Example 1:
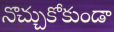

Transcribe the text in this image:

నొచ్చుకోకుండా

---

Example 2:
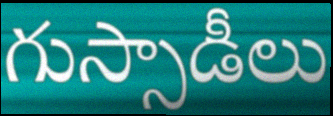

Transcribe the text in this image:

గుస్సాడీలు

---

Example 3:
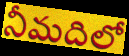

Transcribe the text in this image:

నీమదిలో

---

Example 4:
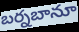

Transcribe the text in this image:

బర్నబానూ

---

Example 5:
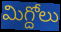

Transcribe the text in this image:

మిగ్దోలు